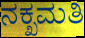
ನಕ್ಖಮತಿ